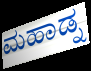
ಮಹಾಡ್ನ